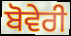
ਬੋਵੇਰੀ